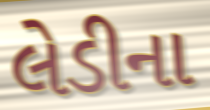
લેડીના